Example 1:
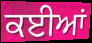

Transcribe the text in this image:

ਕਈਆਂ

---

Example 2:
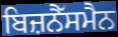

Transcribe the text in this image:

ਬਿਜ਼ਨੈੱਸਮੈਨ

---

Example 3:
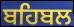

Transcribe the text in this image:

ਬਹਿਬਲ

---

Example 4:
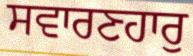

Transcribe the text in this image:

ਸਵਾਰਣਹਾਰੁ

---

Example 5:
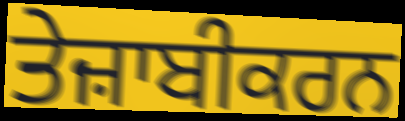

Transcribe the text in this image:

ਤੇਜ਼ਾਬੀਕਰਨ